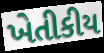
ખેતીકીય